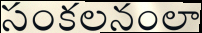
సంకలనంలా